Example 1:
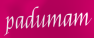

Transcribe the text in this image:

padumam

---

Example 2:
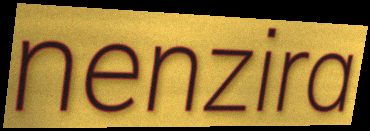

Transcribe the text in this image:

nenzira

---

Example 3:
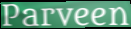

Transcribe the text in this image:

Parveen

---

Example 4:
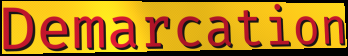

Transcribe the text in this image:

Demarcation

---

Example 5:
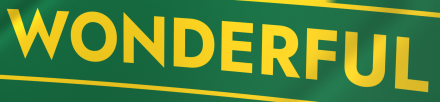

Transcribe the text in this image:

WONDERFUL